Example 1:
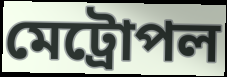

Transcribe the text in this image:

মেট্রোপল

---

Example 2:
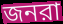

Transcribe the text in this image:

জনরা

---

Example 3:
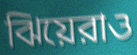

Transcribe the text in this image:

ঝিয়েরাও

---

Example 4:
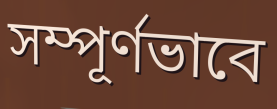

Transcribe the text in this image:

সম্পূর্ণভাবে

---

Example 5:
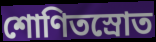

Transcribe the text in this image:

শোণিতস্রোত